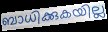
ബാധിക്കുകയില്ല